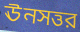
ঊনসত্তর